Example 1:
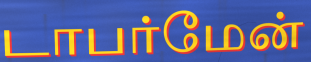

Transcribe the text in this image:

டாபர்மேன்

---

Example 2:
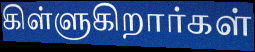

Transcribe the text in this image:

கிள்ளுகிறார்கள்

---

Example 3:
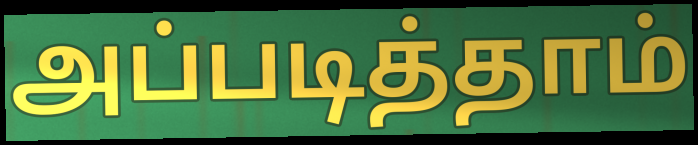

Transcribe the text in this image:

அப்படித்தாம்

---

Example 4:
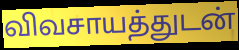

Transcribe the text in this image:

விவசாயத்துடன்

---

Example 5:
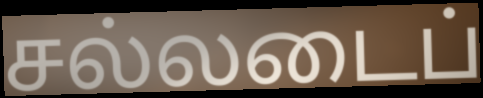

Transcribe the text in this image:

சல்லடைப்